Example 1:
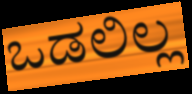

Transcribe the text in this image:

ಒಡಲಿಲ್ಲ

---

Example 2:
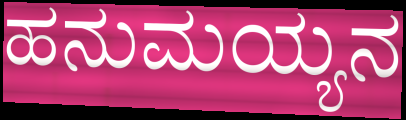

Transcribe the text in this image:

ಹನುಮಯ್ಯನ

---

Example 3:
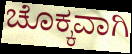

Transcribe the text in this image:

ಚೊಕ್ಕವಾಗಿ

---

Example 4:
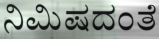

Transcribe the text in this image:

ನಿಮಿಷದಂತೆ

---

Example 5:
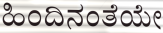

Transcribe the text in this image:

ಹಿಂದಿನಂತೆಯೇ